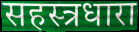
सहस्त्रधारा